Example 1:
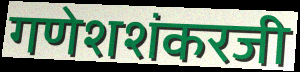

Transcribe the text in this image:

गणेशशंकरजी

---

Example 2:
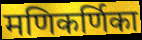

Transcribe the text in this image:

मणिकर्णिका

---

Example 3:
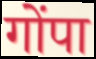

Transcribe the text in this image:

गोंपा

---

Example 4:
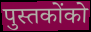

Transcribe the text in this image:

पुस्तकोंको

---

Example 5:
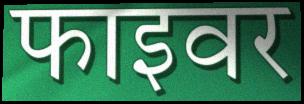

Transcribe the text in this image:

फाइवर